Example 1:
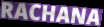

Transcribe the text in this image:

RACHANA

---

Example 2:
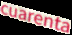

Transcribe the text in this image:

cuarenta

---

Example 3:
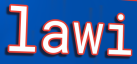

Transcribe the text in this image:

lawi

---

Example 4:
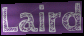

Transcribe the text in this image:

Laird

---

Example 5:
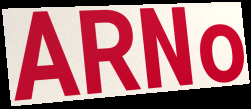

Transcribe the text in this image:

ARNo